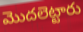
మొదలెట్టారు